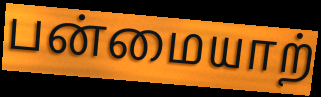
பன்மையாற்